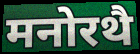
मनोरथै